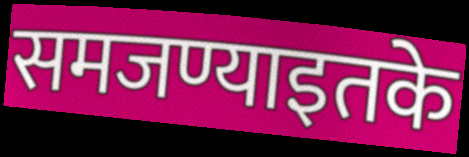
समजण्याइतके